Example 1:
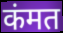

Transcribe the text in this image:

कंमत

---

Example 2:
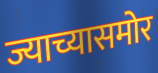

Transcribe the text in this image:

ज्याच्यासमोर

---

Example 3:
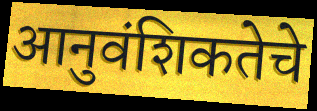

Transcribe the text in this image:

आनुवंशिकतेचे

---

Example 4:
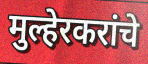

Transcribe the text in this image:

मुल्हेरकरांचे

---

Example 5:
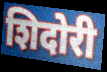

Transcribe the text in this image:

शिदोरी